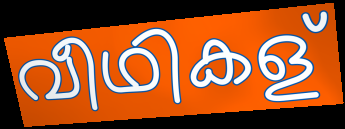
വീഥികള്